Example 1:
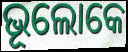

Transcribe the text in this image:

ଭୂଲୋକେ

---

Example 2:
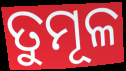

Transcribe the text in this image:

ତୁମୂଳ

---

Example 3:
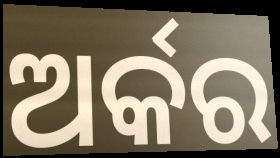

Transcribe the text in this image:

ଅର୍କର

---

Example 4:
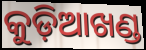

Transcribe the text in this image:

କୁଡ଼ିଆଖଣ୍ଡ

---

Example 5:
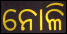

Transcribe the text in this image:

ନୋଳି